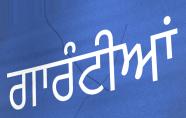
ਗਾਰੰਟੀਆਂ